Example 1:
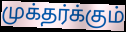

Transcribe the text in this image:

முக்தர்க்கும்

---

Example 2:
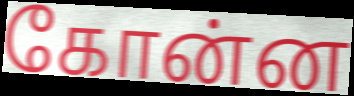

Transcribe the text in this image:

கோன்ன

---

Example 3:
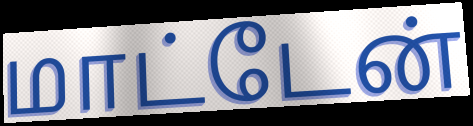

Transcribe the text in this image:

மாட்டேன்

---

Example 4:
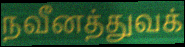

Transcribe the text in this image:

நவீனத்துவக்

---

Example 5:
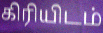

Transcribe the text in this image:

கிரியிடம்